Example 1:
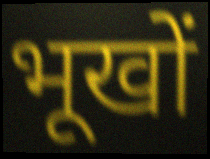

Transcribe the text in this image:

भूखों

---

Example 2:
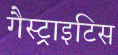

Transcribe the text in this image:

गैस्ट्राइटिस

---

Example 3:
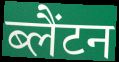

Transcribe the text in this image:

ब्लैंटन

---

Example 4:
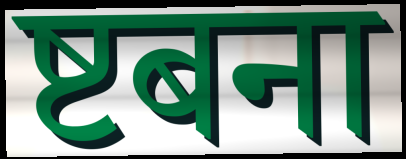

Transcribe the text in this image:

ष्टबना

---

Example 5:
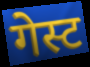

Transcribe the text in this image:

गेस्ट